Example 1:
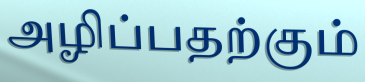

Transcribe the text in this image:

அழிப்பதற்கும்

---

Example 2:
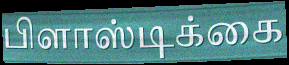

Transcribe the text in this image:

பிளாஸ்டிக்கை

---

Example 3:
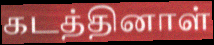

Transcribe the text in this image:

கடத்தினாள்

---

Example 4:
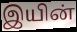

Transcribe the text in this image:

இயின்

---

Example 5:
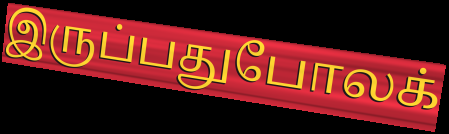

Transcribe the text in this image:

இருப்பதுபோலக்